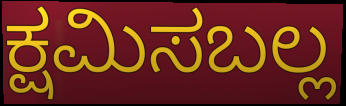
ಕ್ಷಮಿಸಬಲ್ಲ